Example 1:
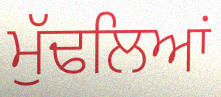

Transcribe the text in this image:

ਮੁੱਢਲਿਆਂ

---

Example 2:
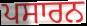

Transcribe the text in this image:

ਪਸਾਰਨ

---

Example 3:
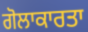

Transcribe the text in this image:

ਗੋਲਾਕਾਰਤਾ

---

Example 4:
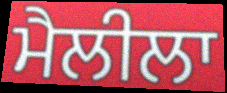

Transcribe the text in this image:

ਮੈਲੀਲਾ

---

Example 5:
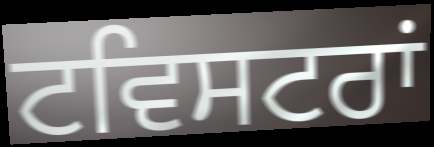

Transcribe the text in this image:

ਟਵਿਸਟਰਾਂ